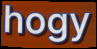
hogy